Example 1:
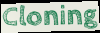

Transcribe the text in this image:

Cloning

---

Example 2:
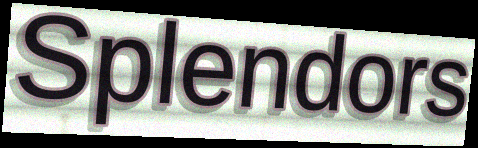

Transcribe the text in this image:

Splendors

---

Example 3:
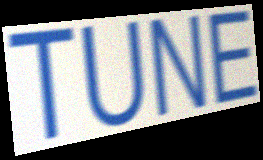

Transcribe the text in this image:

TUNE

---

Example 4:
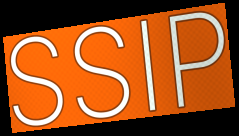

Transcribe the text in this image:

SSIP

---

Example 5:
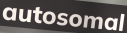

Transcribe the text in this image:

autosomal